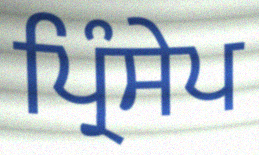
ਪ੍ਰਿੰਸੇਪ